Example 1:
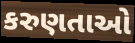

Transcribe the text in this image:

કરુણતાઓ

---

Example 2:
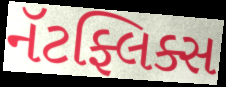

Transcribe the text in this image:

નૅટફ્લિક્સ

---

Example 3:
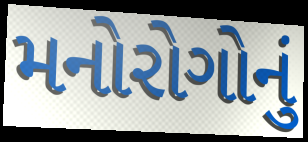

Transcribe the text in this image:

મનોરોગોનું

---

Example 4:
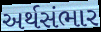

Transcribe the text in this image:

અર્થસંભાર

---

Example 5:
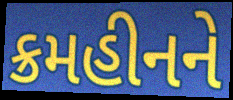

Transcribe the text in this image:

ક્રમહીનને